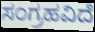
ಸಂಗ್ರಹವಿದೆ